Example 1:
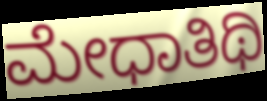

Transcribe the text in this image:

ಮೇಧಾತಿಥಿ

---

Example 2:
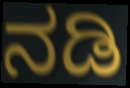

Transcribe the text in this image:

ನಡಿ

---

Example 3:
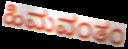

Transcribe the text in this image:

ಹಿಮವಂತಂ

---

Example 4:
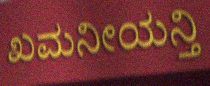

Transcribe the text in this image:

ಖಮನೀಯನ್ತಿ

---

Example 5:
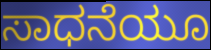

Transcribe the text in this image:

ಸಾಧನೆಯೂ